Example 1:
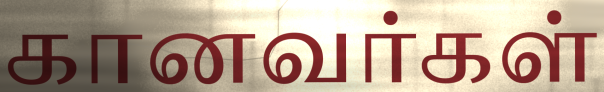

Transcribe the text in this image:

கானவர்கள்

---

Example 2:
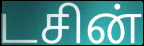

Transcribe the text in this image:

டசின்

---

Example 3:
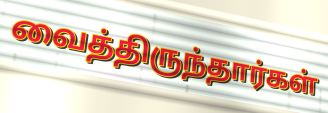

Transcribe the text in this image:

வைத்திருந்தார்கள்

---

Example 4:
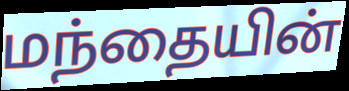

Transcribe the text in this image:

மந்தையின்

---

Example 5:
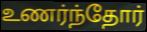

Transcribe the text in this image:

உணர்ந்தோர்